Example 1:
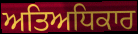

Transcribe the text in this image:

ਅਤਿਅਧਿਕਾਰ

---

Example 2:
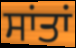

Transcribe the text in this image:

ਸਾਂਤਾਂ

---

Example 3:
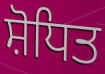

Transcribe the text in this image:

ਸ਼ੋਧਿਤ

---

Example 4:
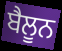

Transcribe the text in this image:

ਬੈਲੂਨ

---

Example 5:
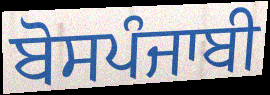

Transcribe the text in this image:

ਬੋਸਪੰਜਾਬੀ